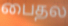
பைதல